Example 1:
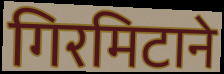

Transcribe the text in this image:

गिरमिटाने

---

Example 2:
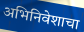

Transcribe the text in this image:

अभिनिवेशाचा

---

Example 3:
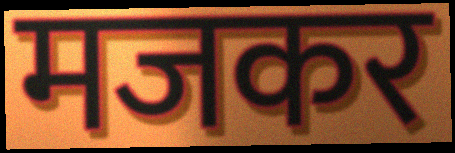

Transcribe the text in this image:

मजकर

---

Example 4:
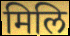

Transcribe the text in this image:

मिलि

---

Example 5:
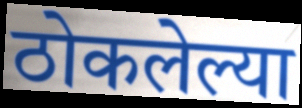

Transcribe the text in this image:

ठोकलेल्या